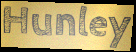
Hunley